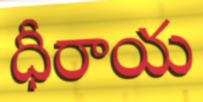
ధీరాయ